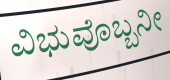
ವಿಭುವೊಬ್ಬನೀ